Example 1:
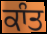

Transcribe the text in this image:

ਕਾੰਤ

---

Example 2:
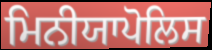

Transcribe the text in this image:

ਮਿਨੀਯਾਪੋਲਿਸ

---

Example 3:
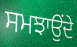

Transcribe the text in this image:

ਸਮਝਾਉਂਦੇ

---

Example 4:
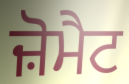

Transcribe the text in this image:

ਜ਼ੋਮੈਟ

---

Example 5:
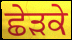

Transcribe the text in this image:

ਛੇੜਕੇ